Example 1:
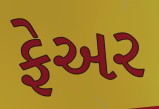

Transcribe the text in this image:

ફેઅર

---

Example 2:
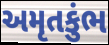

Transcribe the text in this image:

અમૃતકુંભ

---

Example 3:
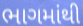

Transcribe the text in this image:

ભાગમાંથી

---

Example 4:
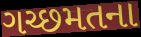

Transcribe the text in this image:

ગચ્છમતના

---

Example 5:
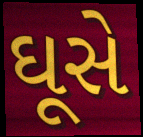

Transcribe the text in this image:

ઘૂસે